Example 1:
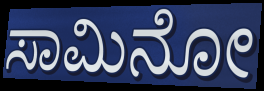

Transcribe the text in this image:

ಸಾಮಿನೋ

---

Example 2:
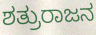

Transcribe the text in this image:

ಶತ್ರುರಾಜನ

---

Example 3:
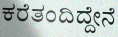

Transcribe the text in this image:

ಕರೆತಂದಿದ್ದೇನೆ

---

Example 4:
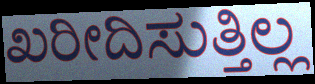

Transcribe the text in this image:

ಖರೀದಿಸುತ್ತಿಲ್ಲ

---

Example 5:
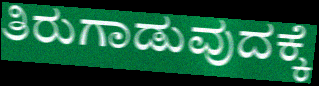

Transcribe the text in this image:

ತಿರುಗಾಡುವುದಕ್ಕೆ